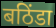
बठिंडा